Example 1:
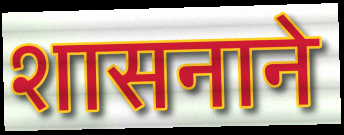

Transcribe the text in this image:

शासनाने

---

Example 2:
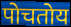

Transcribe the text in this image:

पोचतोय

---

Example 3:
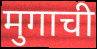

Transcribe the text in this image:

मुगाची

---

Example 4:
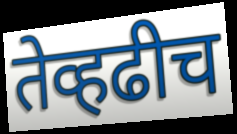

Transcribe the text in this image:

तेव्हढीच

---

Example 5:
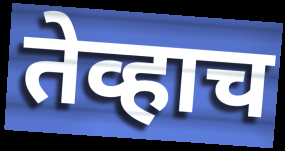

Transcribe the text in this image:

तेव्हाच